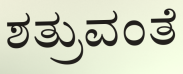
ಶತ್ರುವಂತೆ